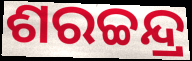
ଶରଚ୍ଚନ୍ଦ୍ର